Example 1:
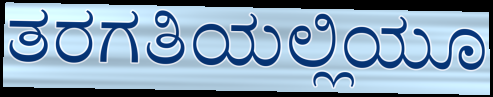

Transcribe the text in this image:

ತರಗತಿಯಲ್ಲಿಯೂ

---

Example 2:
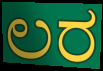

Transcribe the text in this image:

ಲರ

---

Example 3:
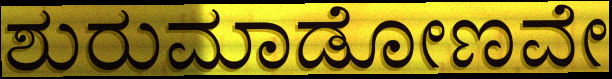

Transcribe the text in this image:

ಶುರುಮಾಡೋಣವೇ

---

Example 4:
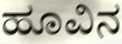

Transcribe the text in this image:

ಹೂವಿನ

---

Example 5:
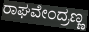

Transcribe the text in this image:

ರಾಘವೇಂದ್ರಣ್ಣ